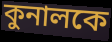
কুনালকে